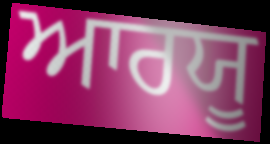
ਆਰਯੂ